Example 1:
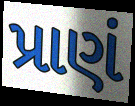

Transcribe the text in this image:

પ્રાણં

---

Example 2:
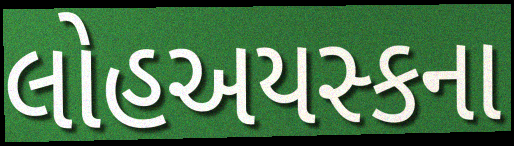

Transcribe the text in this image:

લોહઅયસ્કના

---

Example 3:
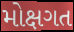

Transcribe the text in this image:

મોક્ષગત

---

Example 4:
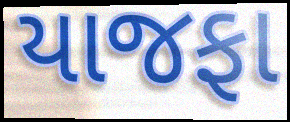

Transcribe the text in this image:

યાજફા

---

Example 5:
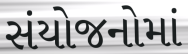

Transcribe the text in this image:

સંયોજનોમાં